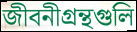
জীবনীগ্রন্থগুলি